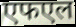
एफएल